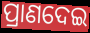
ପ୍ରାଣଦେଇ